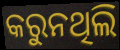
କରୁନଥିଲି